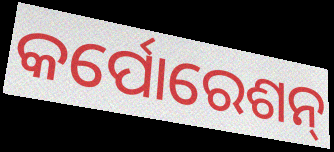
କର୍ପୋରେଶନ୍